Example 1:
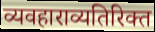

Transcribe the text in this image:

व्यवहाराव्यतिरिक्त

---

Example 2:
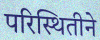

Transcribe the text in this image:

परिस्थितीने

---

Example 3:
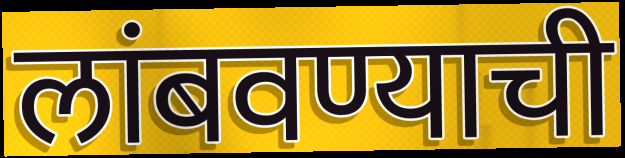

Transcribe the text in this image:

लांबवण्याची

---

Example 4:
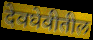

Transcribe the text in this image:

देवघेवीतील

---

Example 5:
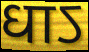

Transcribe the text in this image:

धाऽ